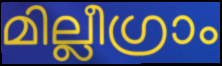
മില്ലീഗ്രാം